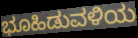
ಭೂಹಿಡುವಳಿಯ